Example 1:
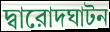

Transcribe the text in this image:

দ্বারোদঘাটন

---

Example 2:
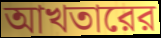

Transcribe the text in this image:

আখতারের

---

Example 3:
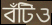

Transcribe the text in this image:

বঁটিও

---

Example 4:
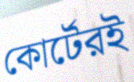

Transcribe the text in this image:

কোর্টেরই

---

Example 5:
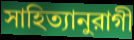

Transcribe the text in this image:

সাহিত্যানুরাগী